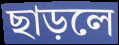
ছাড়লে